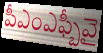
పీఎంఎఫ్బీవై